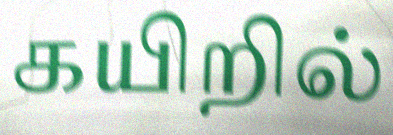
கயிறில்